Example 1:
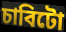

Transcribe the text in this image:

চাবিটো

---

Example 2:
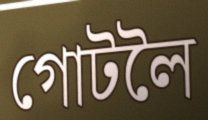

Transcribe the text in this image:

গোটলৈ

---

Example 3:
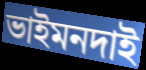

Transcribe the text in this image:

ভাইমনদাই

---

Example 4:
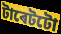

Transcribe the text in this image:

টাৰেটটো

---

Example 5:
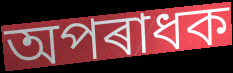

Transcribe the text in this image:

অপৰাধক